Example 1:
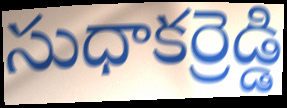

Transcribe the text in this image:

సుధాకర్రెడ్డి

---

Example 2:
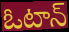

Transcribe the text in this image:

ఓటాన్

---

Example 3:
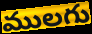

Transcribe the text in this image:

ములగు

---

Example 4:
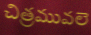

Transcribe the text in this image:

చిత్రమువలె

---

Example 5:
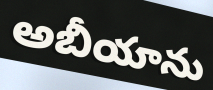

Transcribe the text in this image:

అబీయాను